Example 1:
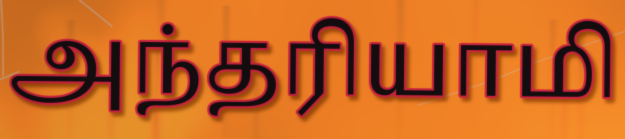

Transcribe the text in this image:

அந்தரியாமி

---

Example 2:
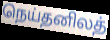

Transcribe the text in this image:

நெய்தனிலத்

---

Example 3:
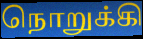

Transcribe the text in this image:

நொறுக்கி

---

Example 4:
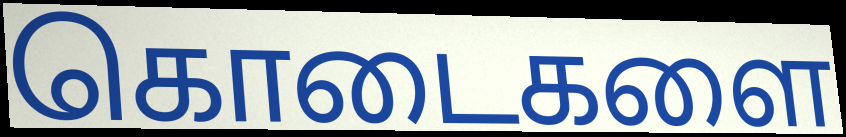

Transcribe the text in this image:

கொடைகளை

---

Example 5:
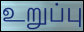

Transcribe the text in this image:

உறுப்பு